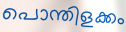
പൊന്തിളക്കം